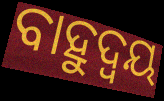
ବାହୁଦ୍ୱୟ